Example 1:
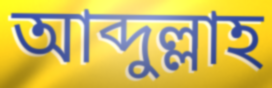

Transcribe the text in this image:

আব্দুল্লাহ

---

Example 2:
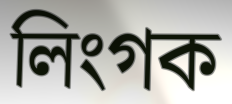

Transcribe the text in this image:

লিংগক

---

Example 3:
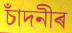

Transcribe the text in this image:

চাঁদনীৰ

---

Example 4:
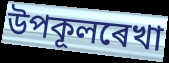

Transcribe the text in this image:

উপকূলৰেখা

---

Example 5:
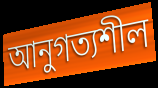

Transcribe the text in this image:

আনুগত্যশীল